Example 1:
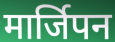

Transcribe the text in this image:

मार्जिपन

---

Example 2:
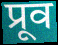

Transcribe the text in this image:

प्रूव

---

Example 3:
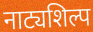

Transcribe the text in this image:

नाट्यशिल्प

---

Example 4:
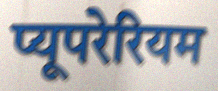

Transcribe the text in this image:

प्यूपरेरियम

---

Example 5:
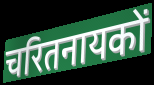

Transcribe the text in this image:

चरितनायकों